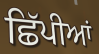
ਛਿੱਪੀਆਂ